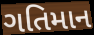
ગતિમાન